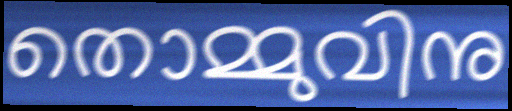
തൊമ്മുവിനു